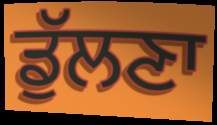
ਡੁੱਲਣਾ